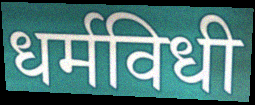
धर्मविधी